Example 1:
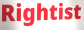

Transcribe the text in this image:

Rightist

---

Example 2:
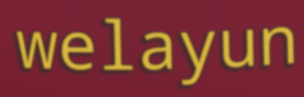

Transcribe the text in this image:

welayun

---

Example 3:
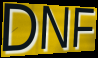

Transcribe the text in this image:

DNF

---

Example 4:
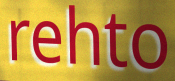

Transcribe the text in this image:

rehto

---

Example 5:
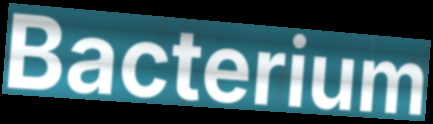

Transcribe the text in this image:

Bacterium